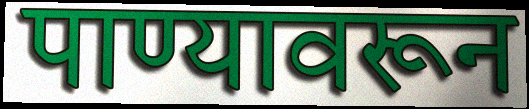
पाण्यावरून